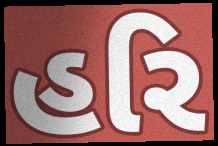
હરિ